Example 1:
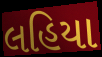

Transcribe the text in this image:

લહિયા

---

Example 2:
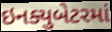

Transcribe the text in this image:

ઇનક્યુબેટરમાં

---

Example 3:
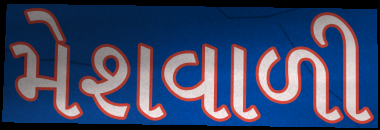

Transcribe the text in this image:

મેશવાળી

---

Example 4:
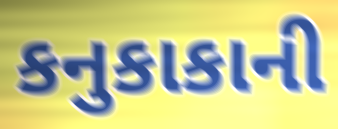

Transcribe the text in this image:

કનુકાકાની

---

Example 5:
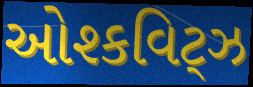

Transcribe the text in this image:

ઓશ્કવિટ્ઝ